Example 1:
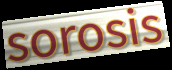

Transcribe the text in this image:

sorosis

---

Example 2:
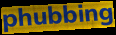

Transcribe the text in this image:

phubbing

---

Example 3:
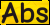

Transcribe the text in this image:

Abs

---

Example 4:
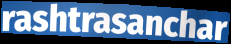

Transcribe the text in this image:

rashtrasanchar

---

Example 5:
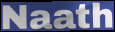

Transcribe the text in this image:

Naath